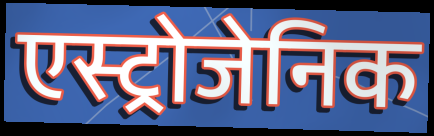
एस्ट्रोजेनिक